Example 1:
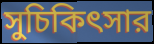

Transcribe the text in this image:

সুচিকিৎসার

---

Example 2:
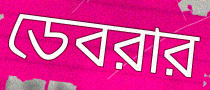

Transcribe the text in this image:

ডেবরার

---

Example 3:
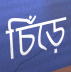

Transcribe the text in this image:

চিঁড়ে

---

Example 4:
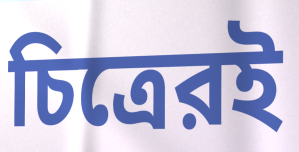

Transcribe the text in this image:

চিত্রেরই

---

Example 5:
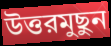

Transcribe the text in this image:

উত্তরমুছুন